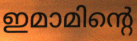
ഇമാമിന്റെ